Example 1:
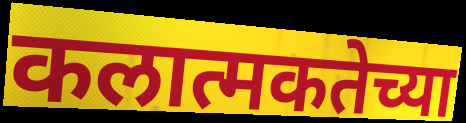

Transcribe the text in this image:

कलात्मकतेच्या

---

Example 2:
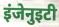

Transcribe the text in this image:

इंजेनुइटी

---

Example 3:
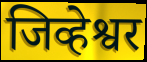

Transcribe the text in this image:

जिव्हेश्वर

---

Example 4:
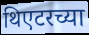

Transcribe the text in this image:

थिएटरच्या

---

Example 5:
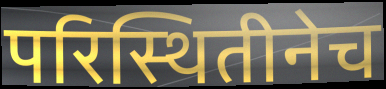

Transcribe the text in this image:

परिस्थितीनेच